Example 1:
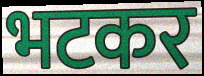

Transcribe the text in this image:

भटकर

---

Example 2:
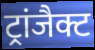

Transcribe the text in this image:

ट्रांजैक्ट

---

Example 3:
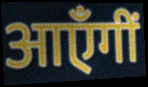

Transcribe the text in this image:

आएँगीं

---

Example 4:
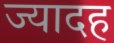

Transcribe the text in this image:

ज्यादह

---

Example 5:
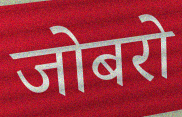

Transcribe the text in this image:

जोबरो